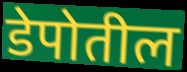
डेपोतील